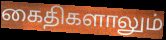
கைதிகளாலும்